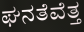
ಘನತೆವೆತ್ತ